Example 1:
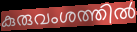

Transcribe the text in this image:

കുരുവംശത്തിൽ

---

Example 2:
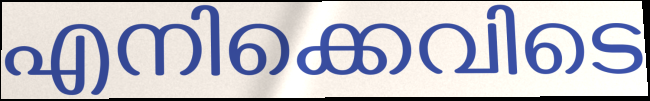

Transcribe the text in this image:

എനിക്കെവിടെ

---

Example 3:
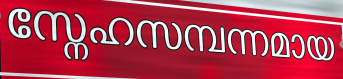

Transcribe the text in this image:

സ്നേഹസമ്പന്നമായ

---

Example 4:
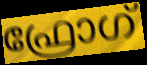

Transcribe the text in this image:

ഫ്രോഗ്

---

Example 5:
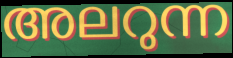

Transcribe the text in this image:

അലറുന്ന